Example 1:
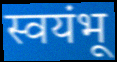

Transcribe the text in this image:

स्वयंभू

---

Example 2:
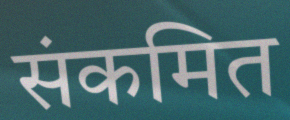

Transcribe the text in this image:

संकमित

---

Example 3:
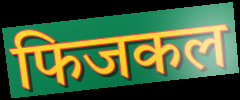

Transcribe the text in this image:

फिजकल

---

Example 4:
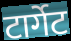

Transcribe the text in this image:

टार्गेट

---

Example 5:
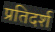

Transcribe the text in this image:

प्रतिदर्श